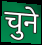
चुने